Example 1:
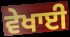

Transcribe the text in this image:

ਵੇਖਾਈ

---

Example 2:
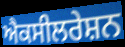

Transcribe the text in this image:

ਐਕਸੀਲਰੇਸ਼ਨ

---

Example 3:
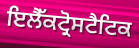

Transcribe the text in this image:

ਇਲੈੱਕਟ੍ਰੋਸਟੈਟਿਕ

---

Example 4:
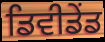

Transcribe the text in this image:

ਡਿਵੀਡੇਂਡ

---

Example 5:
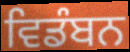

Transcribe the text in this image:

ਵਿਡੰਬਨ